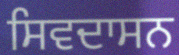
ਸਿਵਦਾਸਨ